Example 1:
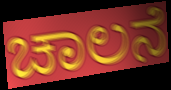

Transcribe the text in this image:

ಚಾಲನೆ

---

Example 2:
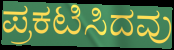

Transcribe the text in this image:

ಪ್ರಕಟಿಸಿದವು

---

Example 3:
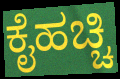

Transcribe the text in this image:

ಕೈಹಚ್ಚಿ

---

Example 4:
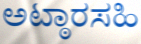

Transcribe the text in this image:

ಅಟ್ಠಾರಸಹಿ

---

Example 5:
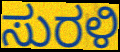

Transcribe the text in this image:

ಸುರಳಿ